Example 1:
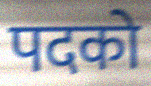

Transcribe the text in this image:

पदको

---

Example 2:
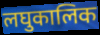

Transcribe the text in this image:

लघुकालिक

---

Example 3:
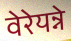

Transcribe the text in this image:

वेरेयन्ने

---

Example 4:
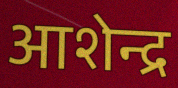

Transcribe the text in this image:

आशेन्द्र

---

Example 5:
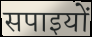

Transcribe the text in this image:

सपाइयों